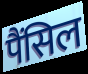
पैंसिल